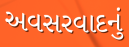
અવસરવાદનું